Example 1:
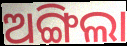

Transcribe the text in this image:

ଅଙ୍ଗିଲା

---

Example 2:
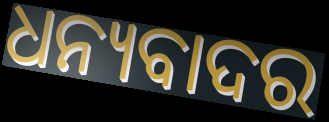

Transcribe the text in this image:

ଧନ୍ୟବାଦର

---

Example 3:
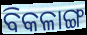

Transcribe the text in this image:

ବିକଳାଙ୍ଗ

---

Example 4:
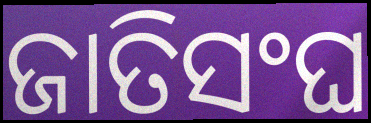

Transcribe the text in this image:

ଜାତିସଂଘ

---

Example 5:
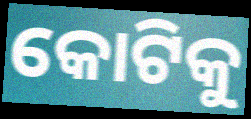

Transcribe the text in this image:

କୋଟିକୁ